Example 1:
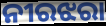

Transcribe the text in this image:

ନୀରଝରା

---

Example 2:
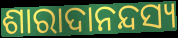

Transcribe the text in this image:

ଶାରାଦାନନ୍ଦସ୍ୟ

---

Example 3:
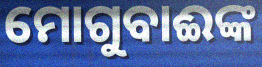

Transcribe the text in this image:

ମୋଗୁବାଈଙ୍କ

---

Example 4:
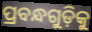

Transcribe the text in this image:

ପ୍ରବନ୍ଧଗୁଡ଼ିକୁ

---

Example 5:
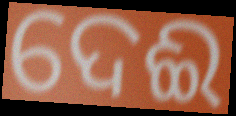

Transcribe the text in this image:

ଦେଈ